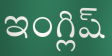
ఇంగ్లిష్